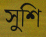
সুশি